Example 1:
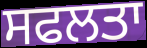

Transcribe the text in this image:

ਸਫਲਤਾ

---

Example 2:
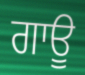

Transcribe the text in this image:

ਗਾਊ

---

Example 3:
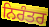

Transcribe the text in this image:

ਨਿਰੰਤਰ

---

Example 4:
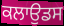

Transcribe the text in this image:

ਕਲਾਉਡਸ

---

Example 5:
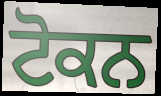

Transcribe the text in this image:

ਟੋਕਨ